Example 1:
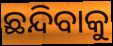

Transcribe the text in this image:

ଛନ୍ଦିବାକୁ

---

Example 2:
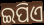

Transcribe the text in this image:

ଇପିଏ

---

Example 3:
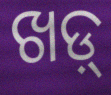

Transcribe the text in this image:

ଖଡ଼୍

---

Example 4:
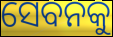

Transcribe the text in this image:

ସେବନକୁ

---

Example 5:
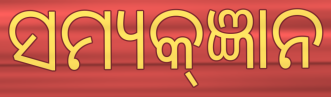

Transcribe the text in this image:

ସମ୍ୟକ୍ଜ୍ଞାନ